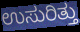
ಉಸುರಿತ್ತು